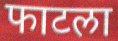
फाटला